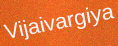
Vijaivargiya